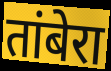
तांबेरा